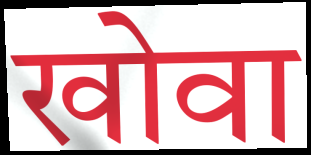
खोवा